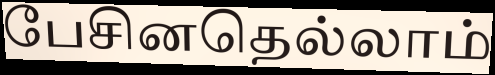
பேசினதெல்லாம்